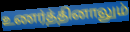
உணர்த்தினாலும்